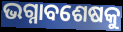
ଭଗ୍ନାବଶେଷକୁ